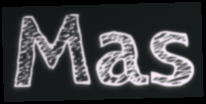
Mas